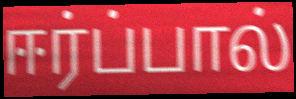
ஈர்ப்பால்